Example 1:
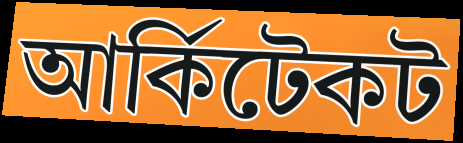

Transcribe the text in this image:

আর্কিটেকট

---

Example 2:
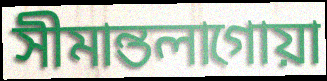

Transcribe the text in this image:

সীমান্তলাগোয়া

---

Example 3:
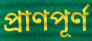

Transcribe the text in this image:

প্রাণপূর্ণ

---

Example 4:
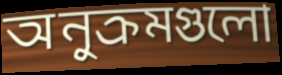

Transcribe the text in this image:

অনুক্রমগুলো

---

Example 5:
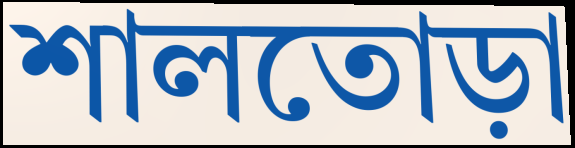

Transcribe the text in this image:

শালতোড়া